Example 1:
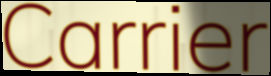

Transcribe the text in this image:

Carrier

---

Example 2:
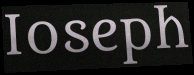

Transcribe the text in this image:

Ioseph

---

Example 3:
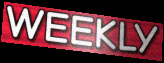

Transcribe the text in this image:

WEEKLY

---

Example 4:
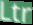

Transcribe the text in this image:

Ltr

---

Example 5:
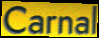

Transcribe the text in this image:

Carnal